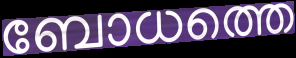
ബോധത്തെ